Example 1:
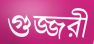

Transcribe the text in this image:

গুজ্জরী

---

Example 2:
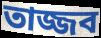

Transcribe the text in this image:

তাজ্জব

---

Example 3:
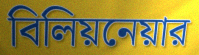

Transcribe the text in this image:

বিলিয়নেয়ার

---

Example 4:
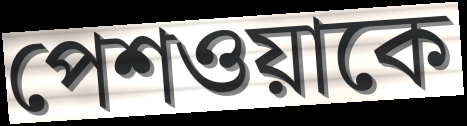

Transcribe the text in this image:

পেশওয়াকে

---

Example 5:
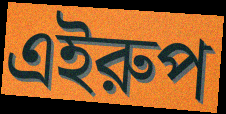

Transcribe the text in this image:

এইরুপ